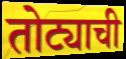
तोट्याची